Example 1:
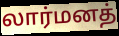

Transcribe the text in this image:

லார்மனத்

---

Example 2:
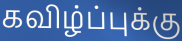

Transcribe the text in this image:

கவிழ்ப்புக்கு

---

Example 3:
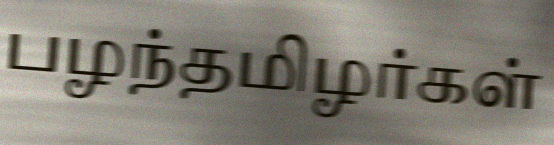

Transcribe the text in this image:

பழந்தமிழர்கள்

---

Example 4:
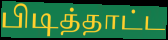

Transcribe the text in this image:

பிடித்தாட்ட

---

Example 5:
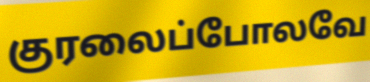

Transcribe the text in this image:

குரலைப்போலவே